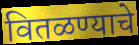
वितळण्याचे